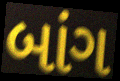
બાંગ